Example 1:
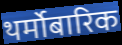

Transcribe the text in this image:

थर्मोबारिक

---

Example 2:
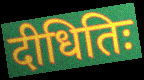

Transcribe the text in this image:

दीधितिः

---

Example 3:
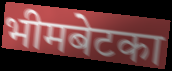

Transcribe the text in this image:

भीमबेटका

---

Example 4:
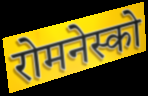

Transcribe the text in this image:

रोमनेस्को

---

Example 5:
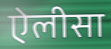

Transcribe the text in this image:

ऐलीसा